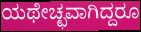
ಯಥೇಚ್ಛವಾಗಿದ್ದರೂ